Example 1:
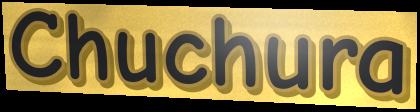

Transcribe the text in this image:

Chuchura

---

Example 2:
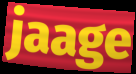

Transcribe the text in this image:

jaage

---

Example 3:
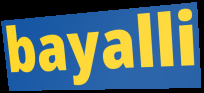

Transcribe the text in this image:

bayalli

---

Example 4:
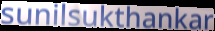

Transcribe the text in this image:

sunilsukthankar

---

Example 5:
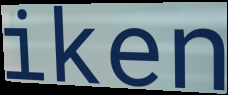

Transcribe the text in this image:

iken